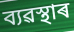
ব্যৱস্থাৰ